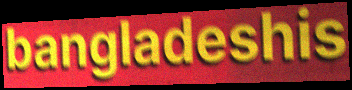
bangladeshis